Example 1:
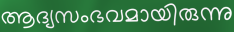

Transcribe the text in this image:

ആദ്യസംഭവമായിരുന്നു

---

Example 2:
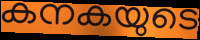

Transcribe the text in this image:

കനകയുടെ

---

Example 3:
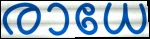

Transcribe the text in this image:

രാധേ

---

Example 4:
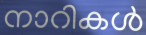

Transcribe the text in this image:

നാറികൾ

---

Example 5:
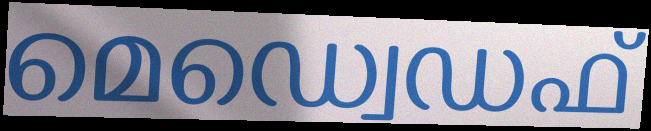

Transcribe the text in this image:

മെഡ്വെഡഫ്